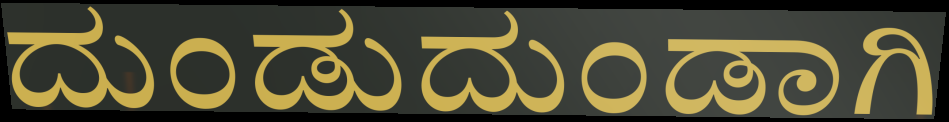
ದುಂಡುದುಂಡಾಗಿ